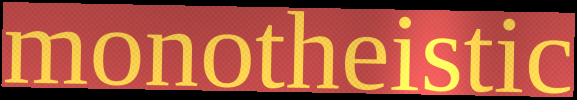
monotheistic